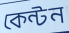
কেন্টন